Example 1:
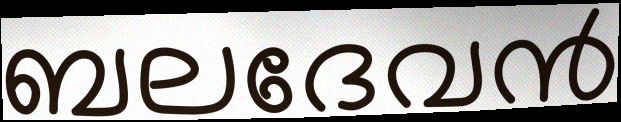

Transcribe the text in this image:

ബലദേവൻ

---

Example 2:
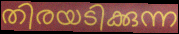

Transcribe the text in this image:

തിരയടിക്കുന്ന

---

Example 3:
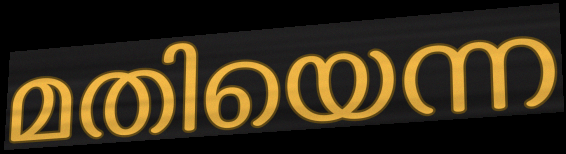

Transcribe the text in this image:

മതിയെന്ന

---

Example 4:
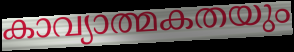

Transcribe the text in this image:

കാവ്യാത്മകതയും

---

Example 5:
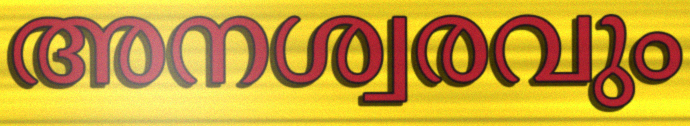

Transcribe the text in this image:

അനശ്വരവും